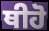
ਥੀਹੋ